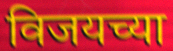
विजयच्या